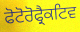
ਫੋਟੋਰੋਫ੍ਰੈਕਟਿਵ